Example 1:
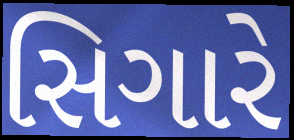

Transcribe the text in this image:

સિગારે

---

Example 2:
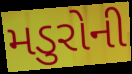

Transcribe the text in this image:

મડુરોની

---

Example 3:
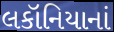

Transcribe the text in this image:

લકૉનિયાનાં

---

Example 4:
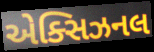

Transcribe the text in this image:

એક્સિઝનલ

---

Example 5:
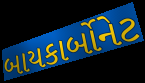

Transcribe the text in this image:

બાયકાર્બોનેટ